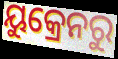
ୟୁକ୍ରେନରୁ